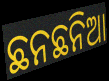
ଛନଛନିଆ